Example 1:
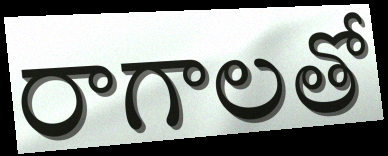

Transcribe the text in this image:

రాగాలతో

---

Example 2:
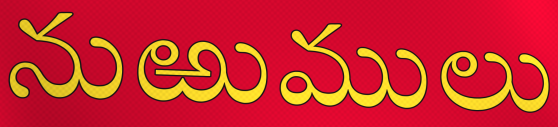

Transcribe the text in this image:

నుఱుములు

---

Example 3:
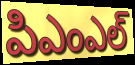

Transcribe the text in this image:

పిఎంఎల్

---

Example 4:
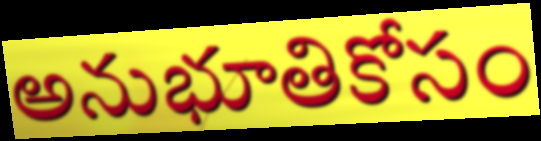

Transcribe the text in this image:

అనుభూతికోసం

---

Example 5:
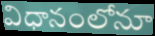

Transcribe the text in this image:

విధానంలోనూ